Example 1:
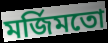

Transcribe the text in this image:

মর্জিমতো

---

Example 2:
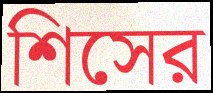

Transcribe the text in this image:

শিসের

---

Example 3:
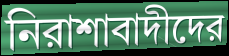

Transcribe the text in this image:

নিরাশাবাদীদের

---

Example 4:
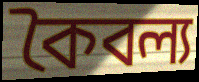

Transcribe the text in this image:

কৈবল্য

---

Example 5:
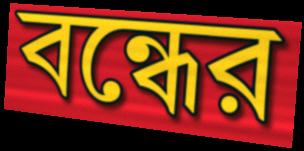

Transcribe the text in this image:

বন্ধের